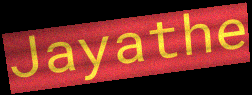
Jayathe